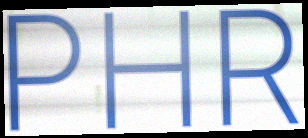
PHR